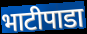
भाटीपाडा